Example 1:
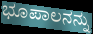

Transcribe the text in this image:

ಭೂಪಾಲನನ್ನು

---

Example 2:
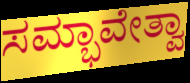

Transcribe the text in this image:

ಸಮ್ಭಾವೇತ್ವಾ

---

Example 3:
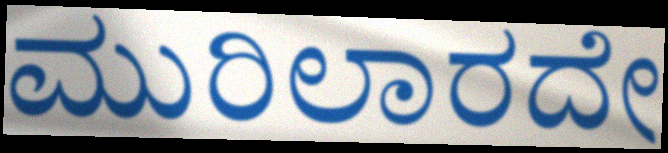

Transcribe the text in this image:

ಮುರಿಲಾರದೇ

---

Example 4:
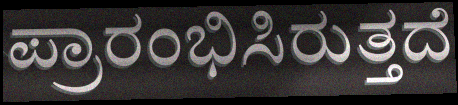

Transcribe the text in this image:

ಪ್ರಾರಂಭಿಸಿರುತ್ತದೆ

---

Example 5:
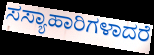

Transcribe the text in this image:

ಸಸ್ಯಾಹಾರಿಗಳಾದರೆ